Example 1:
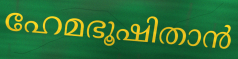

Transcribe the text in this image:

ഹേമഭൂഷിതാൻ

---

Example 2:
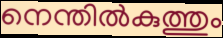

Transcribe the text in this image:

നെന്തിൽകുത്തും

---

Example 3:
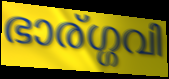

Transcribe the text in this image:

ഭാര്ഗ്ഗവി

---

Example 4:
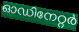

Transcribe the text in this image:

ഓഡിനേറ്റർ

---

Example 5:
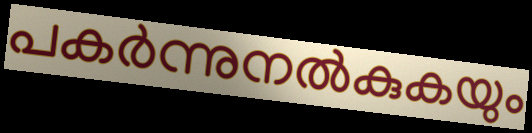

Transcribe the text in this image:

പകർന്നുനൽകുകയും